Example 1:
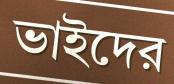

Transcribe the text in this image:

ভাইদের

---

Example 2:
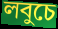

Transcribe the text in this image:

লবুচে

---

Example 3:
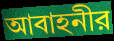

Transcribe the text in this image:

আবাহনীর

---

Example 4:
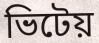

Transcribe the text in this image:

ভিটেয়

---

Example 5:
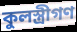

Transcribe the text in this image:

কুলস্ত্রীগণ